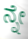
ನ್ನೇ